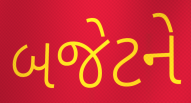
બજેટને